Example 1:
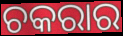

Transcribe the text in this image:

ଚକରାର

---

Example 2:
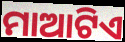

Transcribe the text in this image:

ମାଆଟିଏ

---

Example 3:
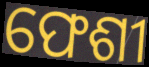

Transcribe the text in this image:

ଫେଶୀ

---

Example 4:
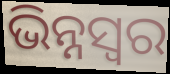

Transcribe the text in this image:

ଭିନ୍ନସ୍ବର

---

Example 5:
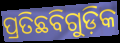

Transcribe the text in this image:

ପ୍ରତିଛବିଗୁଡ଼ିକ